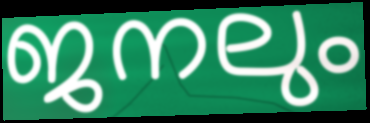
ജനലും